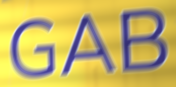
GAB